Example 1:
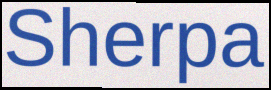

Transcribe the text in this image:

Sherpa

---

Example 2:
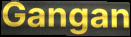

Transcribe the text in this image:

Gangan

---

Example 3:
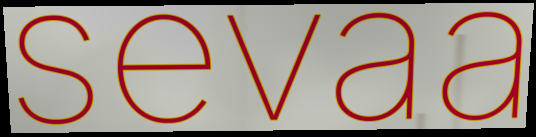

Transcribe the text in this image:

sevaa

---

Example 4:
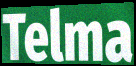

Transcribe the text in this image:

Telma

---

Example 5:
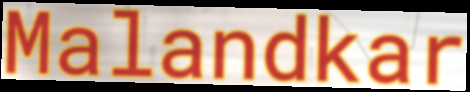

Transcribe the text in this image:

Malandkar